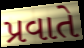
પ્રવાતે